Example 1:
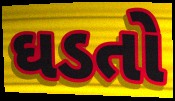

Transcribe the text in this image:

ઘડતો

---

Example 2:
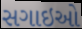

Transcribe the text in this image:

સગાઇઓ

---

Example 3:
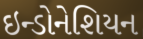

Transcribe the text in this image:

ઇન્ડોનેશિયન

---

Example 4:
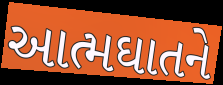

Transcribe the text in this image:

આત્મઘાતને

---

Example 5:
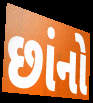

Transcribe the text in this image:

છાંનો